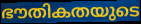
ഭൗതികതയുടെ